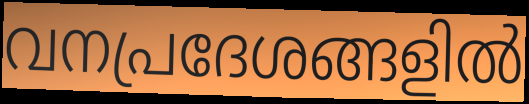
വനപ്രദേശങ്ങളിൽ